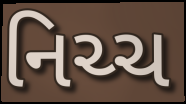
નિચ્ચ